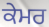
ਕੇਮਰ